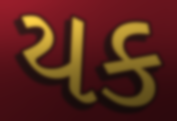
યક